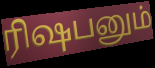
ரிஷபனும்